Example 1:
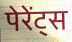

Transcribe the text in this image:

पेरेंट्स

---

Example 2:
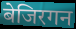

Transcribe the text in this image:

बेजिरगन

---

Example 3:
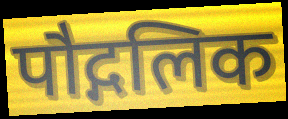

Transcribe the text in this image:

पौद्गलिक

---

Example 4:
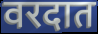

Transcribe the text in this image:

वरदात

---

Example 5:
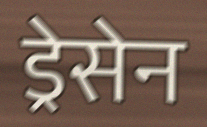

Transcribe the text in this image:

ड्रेसेन